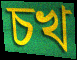
চখ